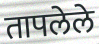
तापलेले